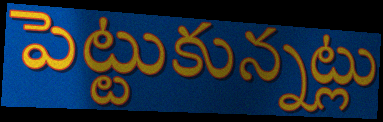
పెట్టుకున్నట్లు